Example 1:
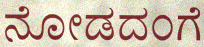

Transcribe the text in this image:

ನೋಡದಂಗೆ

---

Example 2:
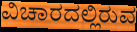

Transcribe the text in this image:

ವಿಚಾರದಲ್ಲಿರುವ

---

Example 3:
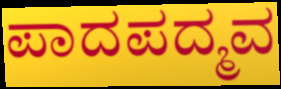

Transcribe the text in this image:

ಪಾದಪದ್ಮವ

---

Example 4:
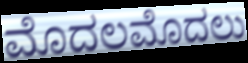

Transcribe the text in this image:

ಮೊದಲಮೊದಲು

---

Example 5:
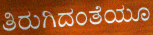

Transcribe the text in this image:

ತಿರುಗಿದಂತೆಯೂ